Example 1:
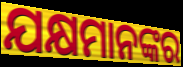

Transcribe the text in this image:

ଯକ୍ଷମାନଙ୍କର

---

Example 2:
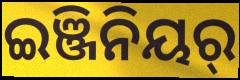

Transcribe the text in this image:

ଇଞ୍ଜିନିୟର୍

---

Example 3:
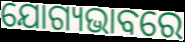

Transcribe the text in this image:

ଯୋଗ୍ୟଭାବରେ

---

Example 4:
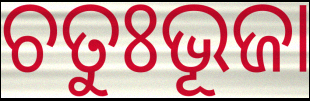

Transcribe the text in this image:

ଚତୁଃଭୂଜା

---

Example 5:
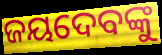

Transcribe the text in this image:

ଜୟଦେବଙ୍କୁ